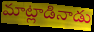
మాట్లాడినాడు